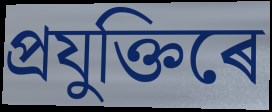
প্ৰযুক্তিৰে